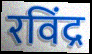
रविंद्र